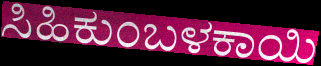
ಸಿಹಿಕುಂಬಳಕಾಯಿ